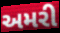
અમરી